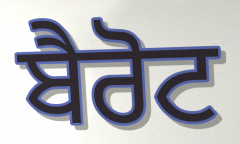
ਬੈਰੋਟ